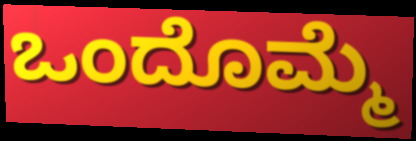
ಒಂದೊಮ್ಮೆ